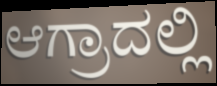
ಆಗ್ರಾದಲ್ಲಿ